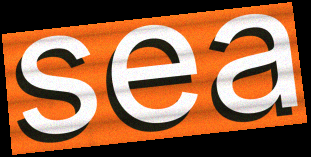
sea